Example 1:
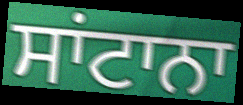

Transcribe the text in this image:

ਸਾਂਟਾਨਾ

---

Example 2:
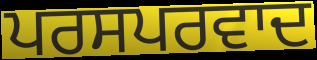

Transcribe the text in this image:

ਪਰਸਪਰਵਾਦ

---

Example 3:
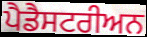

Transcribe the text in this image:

ਪੈਡੈਸਟਰੀਅਨ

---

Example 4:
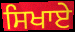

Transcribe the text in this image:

ਸਿਖਾਏ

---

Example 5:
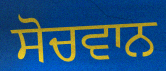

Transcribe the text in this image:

ਸੋਚਵਾਨ